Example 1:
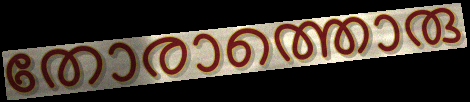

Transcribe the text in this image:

തോരാത്തൊരു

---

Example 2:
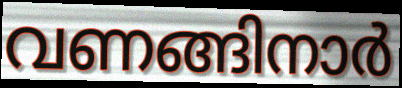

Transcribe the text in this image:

വണങ്ങിനാർ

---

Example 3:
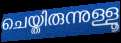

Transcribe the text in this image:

ചെയ്തിരുന്നുള്ളൂ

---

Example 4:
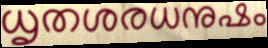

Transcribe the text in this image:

ധൃതശരധനുഷം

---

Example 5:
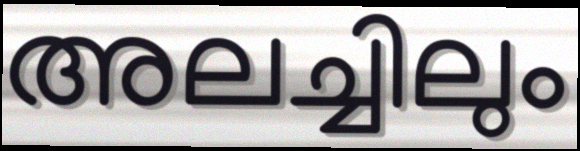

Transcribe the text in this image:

അലച്ചിലും